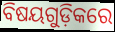
ବିଷୟଗୁଡ଼ିକରେ